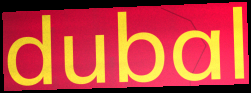
dubal